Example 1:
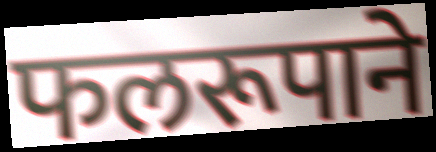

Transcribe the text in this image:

फलरूपाने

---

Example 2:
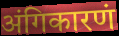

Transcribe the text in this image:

अंगिकारणं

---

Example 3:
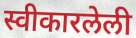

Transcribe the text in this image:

स्वीकारलेली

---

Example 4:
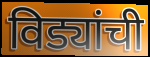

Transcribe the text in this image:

विड्यांची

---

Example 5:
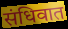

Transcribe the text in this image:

संधिवात